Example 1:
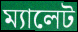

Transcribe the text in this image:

ম্যালেট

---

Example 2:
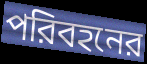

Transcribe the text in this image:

পরিবহনের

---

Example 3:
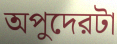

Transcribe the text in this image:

অপুদেরটা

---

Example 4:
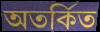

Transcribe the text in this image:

অতর্কিত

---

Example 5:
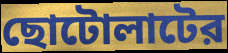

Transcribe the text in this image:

ছোটোলাটের